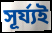
সূৰ্য্যই